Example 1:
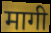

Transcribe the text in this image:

मागी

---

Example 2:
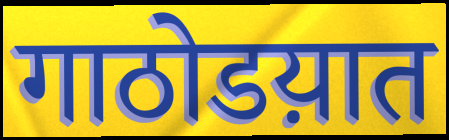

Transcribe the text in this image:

गाठोडय़ात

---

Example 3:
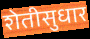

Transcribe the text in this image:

शेतीसुधार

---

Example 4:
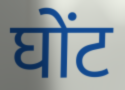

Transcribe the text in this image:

घोंट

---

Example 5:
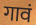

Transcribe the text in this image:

गावं